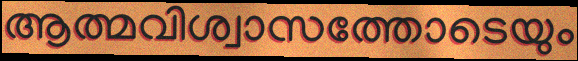
ആത്മവിശ്വാസത്തോടെയും